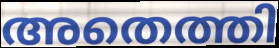
അതെത്തി